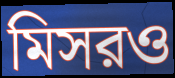
মিসরও